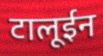
टालूईन